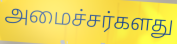
அமைச்சர்களது